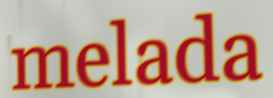
melada